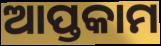
ଆପ୍ତକାମ